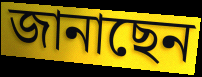
জানাছেন